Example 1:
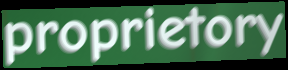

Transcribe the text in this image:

proprietory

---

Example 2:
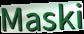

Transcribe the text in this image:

Maski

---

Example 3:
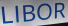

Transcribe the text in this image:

LIBOR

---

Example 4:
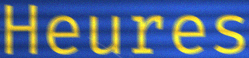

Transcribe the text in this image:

Heures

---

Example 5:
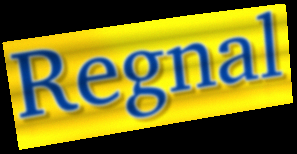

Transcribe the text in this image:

Regnal